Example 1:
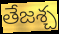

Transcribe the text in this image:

తేజశ్చ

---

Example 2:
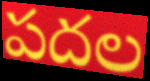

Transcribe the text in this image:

పదల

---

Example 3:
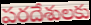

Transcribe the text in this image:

పరదేశులకు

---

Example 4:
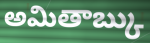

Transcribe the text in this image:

అమితాబ్కు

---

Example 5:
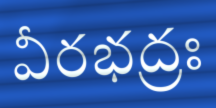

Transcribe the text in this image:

వీరభద్రః